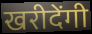
खरीदेंगी